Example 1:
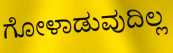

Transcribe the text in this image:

ಗೋಳಾಡುವುದಿಲ್ಲ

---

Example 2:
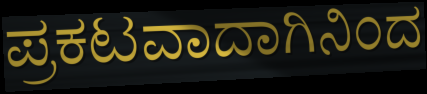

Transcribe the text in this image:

ಪ್ರಕಟವಾದಾಗಿನಿಂದ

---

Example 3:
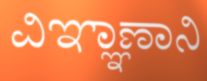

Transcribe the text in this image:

ವಿಞ್ಞಾಣಾನಿ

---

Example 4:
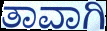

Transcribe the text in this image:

ತಾವಾಗಿ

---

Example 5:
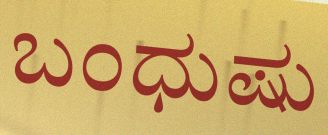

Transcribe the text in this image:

ಬಂಧುಷು